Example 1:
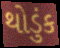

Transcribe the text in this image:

થોડુંક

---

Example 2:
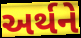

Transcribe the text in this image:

અર્થને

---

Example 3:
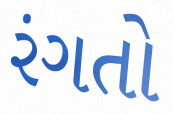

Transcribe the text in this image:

રંગતો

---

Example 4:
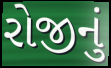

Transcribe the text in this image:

રોજીનું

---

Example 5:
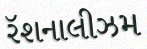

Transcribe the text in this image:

રૅશનાલીઝમ